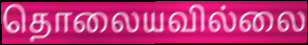
தொலையவில்லை